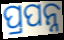
ପ୍ରପନ୍ନ